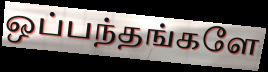
ஒப்பந்தங்களே